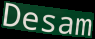
Desam